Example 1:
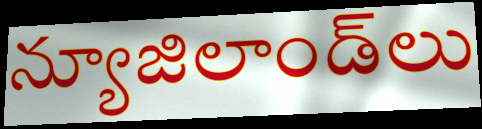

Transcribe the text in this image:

న్యూజిలాండ్‌లు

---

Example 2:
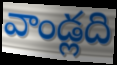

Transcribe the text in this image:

వాండ్లది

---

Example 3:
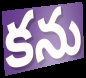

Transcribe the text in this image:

కను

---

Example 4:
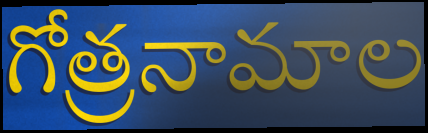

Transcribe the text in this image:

గోత్రనామాల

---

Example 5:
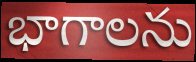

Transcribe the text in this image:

భాగాలను